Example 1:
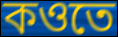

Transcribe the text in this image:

কওতে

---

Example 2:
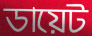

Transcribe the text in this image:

ডায়েট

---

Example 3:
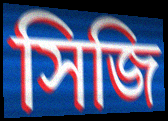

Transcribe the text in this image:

সিজি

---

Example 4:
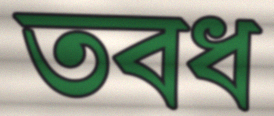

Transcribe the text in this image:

তবধ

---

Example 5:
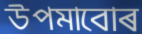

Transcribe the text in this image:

উপমাবোৰ